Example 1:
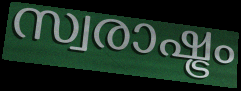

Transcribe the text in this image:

സ്വരാഷ്ട്രം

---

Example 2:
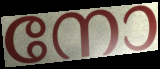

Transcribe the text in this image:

നോ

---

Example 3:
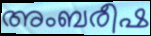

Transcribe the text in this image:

അംബരീഷ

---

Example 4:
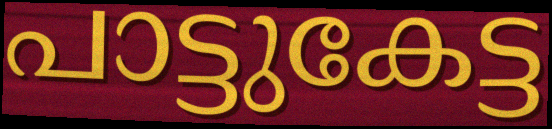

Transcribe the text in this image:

പാട്ടുകേട്ട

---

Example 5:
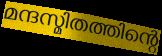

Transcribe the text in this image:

മന്ദസ്മിതത്തിന്റെ